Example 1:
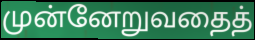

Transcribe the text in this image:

முன்னேறுவதைத்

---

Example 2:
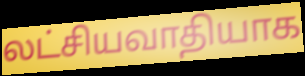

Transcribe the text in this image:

லட்சியவாதியாக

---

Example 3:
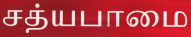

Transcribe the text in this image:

சத்யபாமை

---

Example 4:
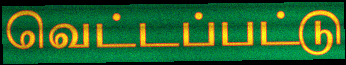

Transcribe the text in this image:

வெட்டப்பட்டு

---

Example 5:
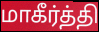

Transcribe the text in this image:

மாகீர்த்தி